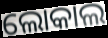
ଲୋକାଲ